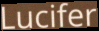
Lucifer